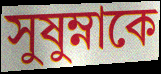
সুষুম্নাকে